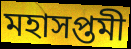
মহাসপ্তমী